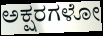
ಅಕ್ಷರಗಳೋ